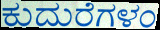
ಕುದುರೆಗಳಂ